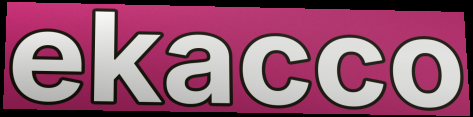
ekacco